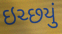
ઇચ્છયું